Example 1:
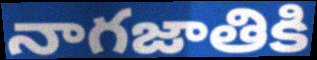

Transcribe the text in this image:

నాగజాతికి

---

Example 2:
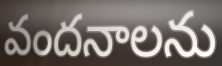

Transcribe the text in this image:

వందనాలను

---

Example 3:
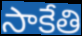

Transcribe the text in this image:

సాకేతి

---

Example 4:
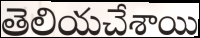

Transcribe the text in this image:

తెలియచేశాయి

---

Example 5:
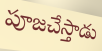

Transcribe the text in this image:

పూజచేస్తాడు